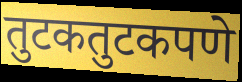
तुटकतुटकपणे